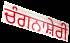
ਚੰਗਨਾਸ਼ੇਰੀ